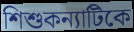
শিশুকন্যাটিকে